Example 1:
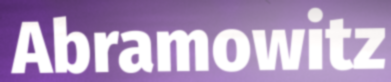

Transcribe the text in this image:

Abramowitz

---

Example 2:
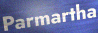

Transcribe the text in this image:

Parmartha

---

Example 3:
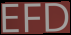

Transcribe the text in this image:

EFD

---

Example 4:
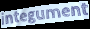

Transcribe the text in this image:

integument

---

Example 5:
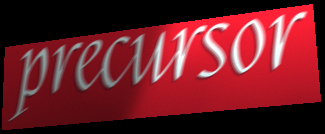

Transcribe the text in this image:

precursor